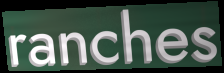
ranches